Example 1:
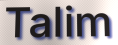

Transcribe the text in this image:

Talim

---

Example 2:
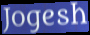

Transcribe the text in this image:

Jogesh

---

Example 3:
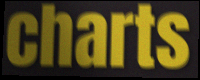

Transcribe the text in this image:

charts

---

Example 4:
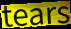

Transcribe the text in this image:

tears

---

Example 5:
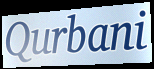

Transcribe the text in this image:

Qurbani